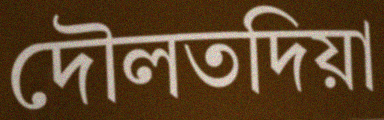
দৌলতদিয়া